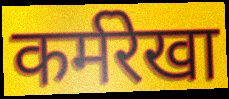
कर्मरेखा